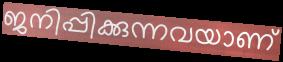
ജനിപ്പിക്കുന്നവയാണ്